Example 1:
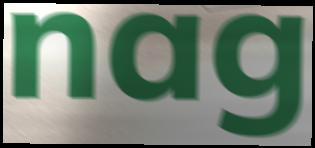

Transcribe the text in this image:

nag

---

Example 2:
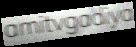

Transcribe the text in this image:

amitvgadiya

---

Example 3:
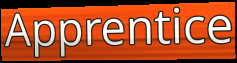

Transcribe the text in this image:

Apprentice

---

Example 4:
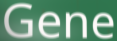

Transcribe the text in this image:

Gene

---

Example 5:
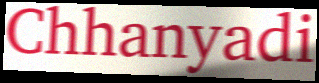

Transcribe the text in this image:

Chhanyadi